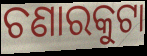
ଚଣାରକୁଟା